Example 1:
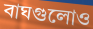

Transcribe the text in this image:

বাঘগুলোও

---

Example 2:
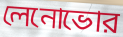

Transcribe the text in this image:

লেনোভোর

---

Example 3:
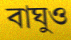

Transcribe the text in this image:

বাঘুও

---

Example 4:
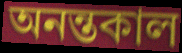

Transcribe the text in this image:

অনন্তকাল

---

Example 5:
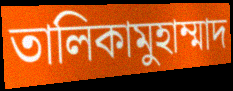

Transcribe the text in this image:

তালিকামুহাম্মাদ